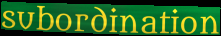
subordination